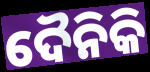
ଦୈନିକି